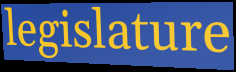
legislature